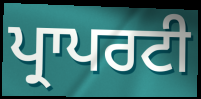
ਪ੍ਰਾਪਰਟੀ